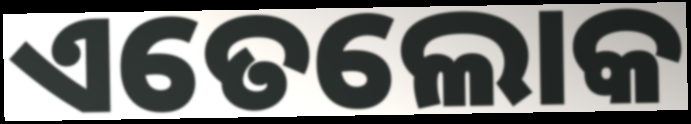
ଏତେଲୋକ